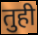
तुही